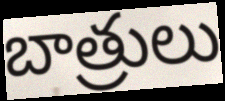
బాత్రులు